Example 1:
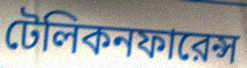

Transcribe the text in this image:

টেলিকনফারেন্স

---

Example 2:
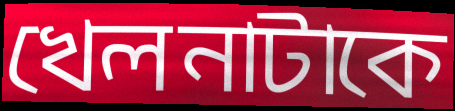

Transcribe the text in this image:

খেলনাটাকে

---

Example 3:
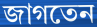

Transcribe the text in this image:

জাগতেন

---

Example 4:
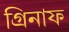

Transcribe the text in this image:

গ্রিনাফ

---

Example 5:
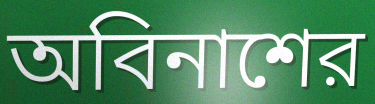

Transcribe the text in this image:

অবিনাশের